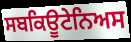
ਸਬਕਿਊਟੇਨਿਅਸ